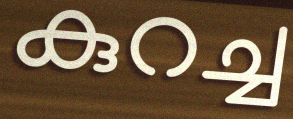
കുറച്ച